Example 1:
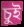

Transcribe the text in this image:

চুই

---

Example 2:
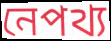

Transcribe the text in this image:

নেপথ্য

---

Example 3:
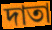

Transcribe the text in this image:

দাতা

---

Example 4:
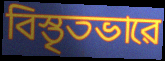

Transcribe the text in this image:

বিস্তৃতভাৱে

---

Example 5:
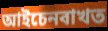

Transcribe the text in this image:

আইচেনবাখত